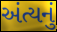
અંત્યનું